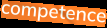
competence